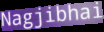
Nagjibhai